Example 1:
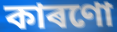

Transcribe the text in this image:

কাৰণো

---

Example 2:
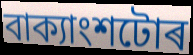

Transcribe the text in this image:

বাক্যাংশটোৰ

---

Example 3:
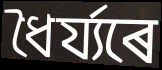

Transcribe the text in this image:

ধৈৰ্য্যৰে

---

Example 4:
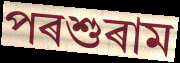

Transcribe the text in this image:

পৰশুৰাম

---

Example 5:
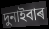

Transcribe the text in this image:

দুনাইবাৰ